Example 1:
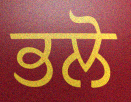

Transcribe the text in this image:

ਭਲੋ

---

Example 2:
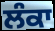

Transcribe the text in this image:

ਲੰਕਾ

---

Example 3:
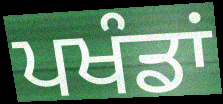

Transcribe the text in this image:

ਪਖੰਡਾਂ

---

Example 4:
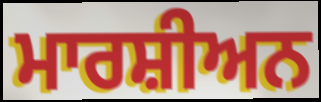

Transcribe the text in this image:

ਮਾਰਸ਼ੀਅਨ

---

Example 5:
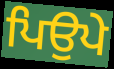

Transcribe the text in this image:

ਪਿਉਪੇ